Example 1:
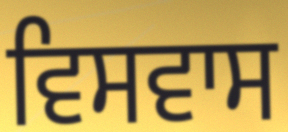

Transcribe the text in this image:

ਵਿਸਵਾਸ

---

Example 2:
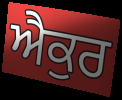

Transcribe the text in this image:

ਐਕੁਰ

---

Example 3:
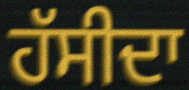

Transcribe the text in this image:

ਹੱਸੀਦਾ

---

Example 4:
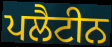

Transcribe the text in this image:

ਪਲੈਟੀਨ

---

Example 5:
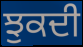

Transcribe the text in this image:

ਝੁਕਦੀ